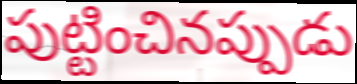
పుట్టించినప్పుడు